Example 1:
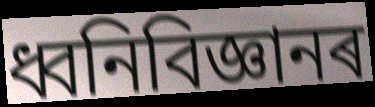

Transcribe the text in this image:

ধ্বনিবিজ্ঞানৰ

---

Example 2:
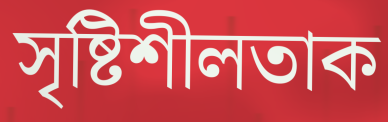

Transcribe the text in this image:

সৃষ্টিশীলতাক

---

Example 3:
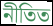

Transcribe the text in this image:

নীতিত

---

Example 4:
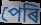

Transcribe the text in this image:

পেৰি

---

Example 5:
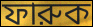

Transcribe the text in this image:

ফাৰুক